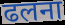
ढलना